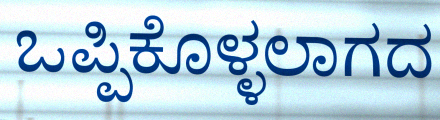
ಒಪ್ಪಿಕೊಳ್ಳಲಾಗದ